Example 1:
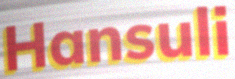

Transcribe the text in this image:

Hansuli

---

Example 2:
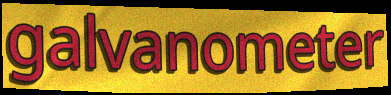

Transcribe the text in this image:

galvanometer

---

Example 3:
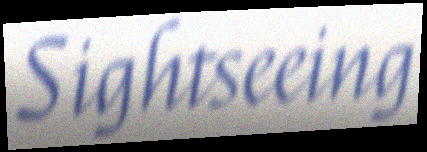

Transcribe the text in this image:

Sightseeing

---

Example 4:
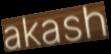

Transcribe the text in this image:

akash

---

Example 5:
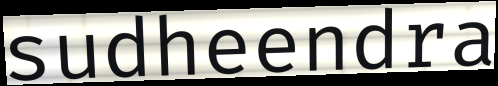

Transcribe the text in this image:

sudheendra